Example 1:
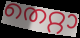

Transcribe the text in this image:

തെറ്റാ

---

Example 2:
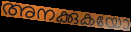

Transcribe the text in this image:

അനക്കുകയോ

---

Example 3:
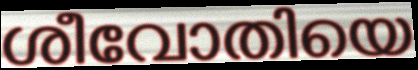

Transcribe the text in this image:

ശീവോതിയെ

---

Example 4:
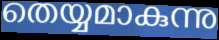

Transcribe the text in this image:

തെയ്യമാകുന്നു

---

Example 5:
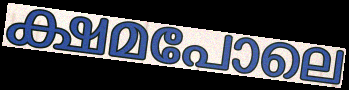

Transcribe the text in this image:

ക്ഷമപോലെ